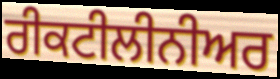
ਰੀਕਟੀਲੀਨੀਅਰ